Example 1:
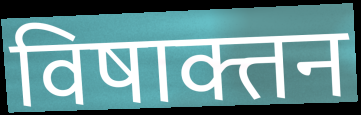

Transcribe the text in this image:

विषाक्तन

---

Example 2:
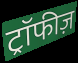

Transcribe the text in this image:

ट्रॉफीज़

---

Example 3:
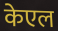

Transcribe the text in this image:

केएल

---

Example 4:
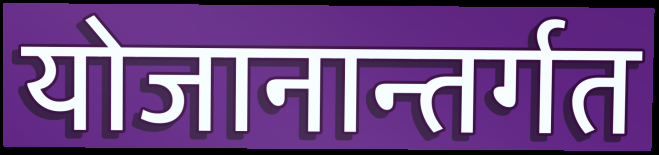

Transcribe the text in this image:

योजानान्तर्गत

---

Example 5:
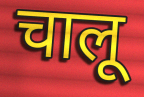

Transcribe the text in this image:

चालू